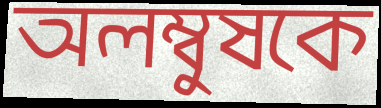
অলম্বুষকে